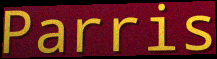
Parris